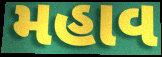
મહાવ